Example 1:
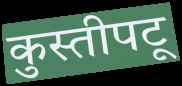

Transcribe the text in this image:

कुस्तीपटू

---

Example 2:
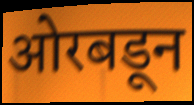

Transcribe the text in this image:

ओरबडून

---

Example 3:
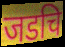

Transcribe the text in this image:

जडचि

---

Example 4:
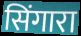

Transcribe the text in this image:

सिंगारा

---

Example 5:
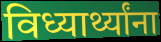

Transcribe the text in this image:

विध्यार्थ्यांना